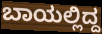
ಬಾಯಲ್ಲಿದ್ದ